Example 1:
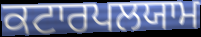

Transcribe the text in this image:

ਕਟਾਰਪਲਯਾਮ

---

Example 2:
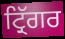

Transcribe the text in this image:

ਟ੍ਰਿੱਗਰ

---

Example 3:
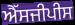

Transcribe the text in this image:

ਐੱਸਜੀਪੀਸ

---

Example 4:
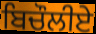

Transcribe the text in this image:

ਬਿਚੌਲੀਏ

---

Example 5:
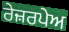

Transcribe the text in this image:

ਰੇਜ਼ਰਪੇਅ